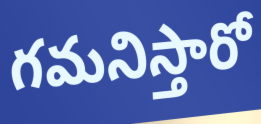
గమనిస్తారో